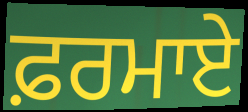
ਫ਼ਰਮਾਏ